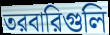
তরবারিগুলি